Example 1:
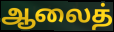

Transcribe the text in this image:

ஆலைத்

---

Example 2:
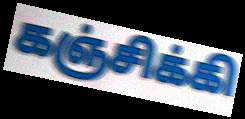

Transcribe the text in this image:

கஞ்சிக்கி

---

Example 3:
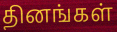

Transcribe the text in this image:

தினங்கள்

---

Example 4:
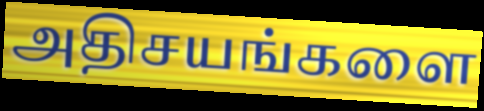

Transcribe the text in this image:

அதிசயங்களை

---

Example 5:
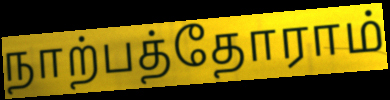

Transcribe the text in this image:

நாற்பத்தோராம்